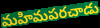
మహిమపరచాడు